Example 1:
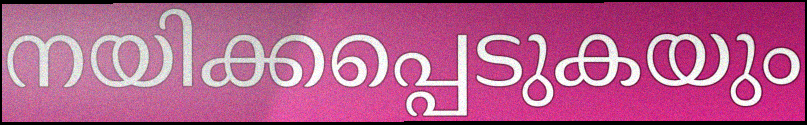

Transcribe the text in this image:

നയിക്കപ്പെടുകയും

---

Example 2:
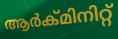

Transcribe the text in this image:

ആർക്മിനിറ്റ്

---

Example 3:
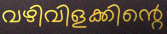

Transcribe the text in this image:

വഴിവിളക്കിന്റെ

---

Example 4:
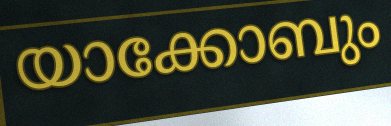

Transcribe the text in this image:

യാക്കോബും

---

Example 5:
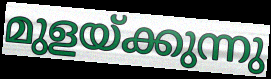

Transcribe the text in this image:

മുളയ്ക്കുന്നു